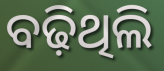
ବଢ଼ିଥିଲି